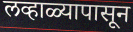
लव्हाळ्यापासून